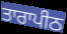
ਤਾਰਾਪੀਠ